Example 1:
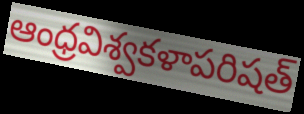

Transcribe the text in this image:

ఆంధ్రవిశ్వకళాపరిషత్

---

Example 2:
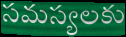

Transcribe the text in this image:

సమస్యలకు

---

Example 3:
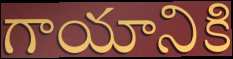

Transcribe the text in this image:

గాయానికి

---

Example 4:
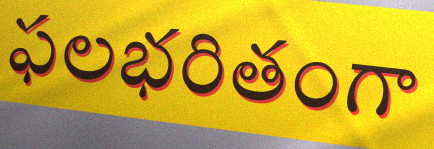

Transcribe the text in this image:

ఫలభరితంగా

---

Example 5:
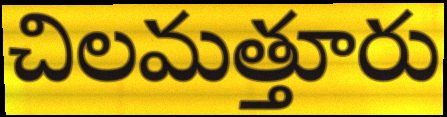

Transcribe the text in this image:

చిలమత్తూరు